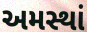
અમસ્થાં